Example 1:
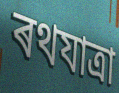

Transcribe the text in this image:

ৰথযাত্ৰা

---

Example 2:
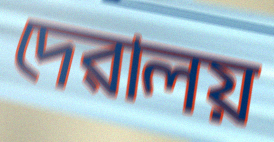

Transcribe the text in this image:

দেৱালয়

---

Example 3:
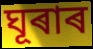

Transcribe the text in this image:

ঘূৰাৰ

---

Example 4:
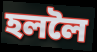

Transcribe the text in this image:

হললৈ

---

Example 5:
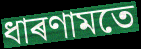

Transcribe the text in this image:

ধাৰণামতে